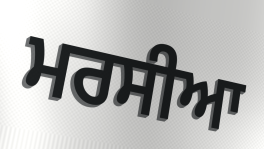
ਮਰਸੀਆ